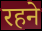
रहने